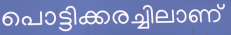
പൊട്ടിക്കരച്ചിലാണ്